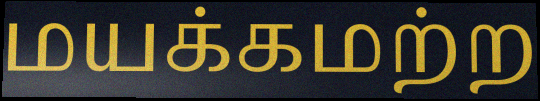
மயக்கமற்ற